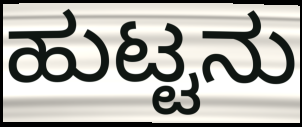
ಹುಟ್ಟನು